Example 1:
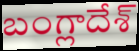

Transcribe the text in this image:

బంగ్లాదేశ్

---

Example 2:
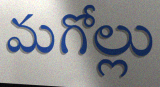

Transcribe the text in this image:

మగోల్లు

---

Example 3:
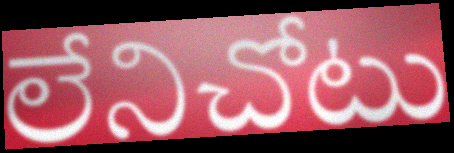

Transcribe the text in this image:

లేనిచోటు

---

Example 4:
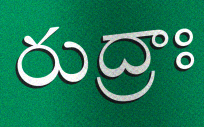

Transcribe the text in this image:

రుద్రాః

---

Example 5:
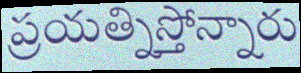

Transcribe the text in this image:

ప్రయత్నిస్తోన్నారు